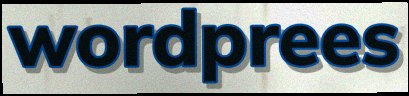
wordprees